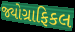
જ્યોગ્રાફિકલ